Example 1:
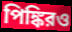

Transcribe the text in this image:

পিঙ্কিরও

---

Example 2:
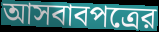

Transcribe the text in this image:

আসবাবপত্রের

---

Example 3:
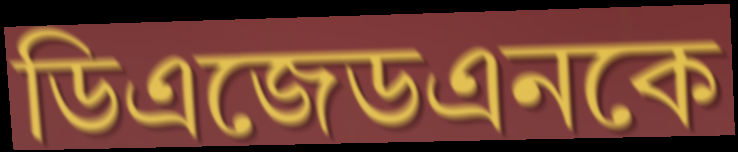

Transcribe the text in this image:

ডিএজেডএনকে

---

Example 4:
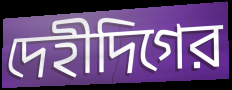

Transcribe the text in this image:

দেহীদিগের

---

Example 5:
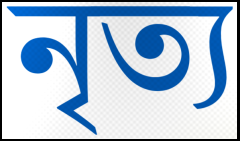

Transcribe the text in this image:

নৃত্য